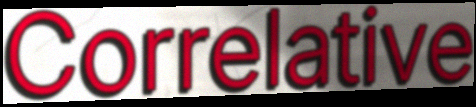
Correlative